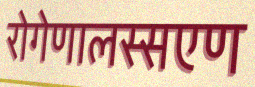
रोगेणालस्सएण